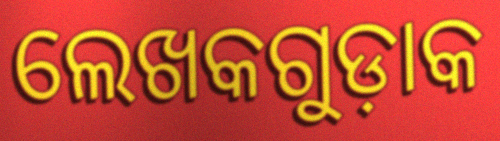
ଲେଖକଗୁଡ଼ାକ